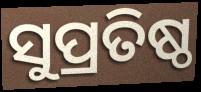
ସୁପ୍ରତିଷ୍ଠ